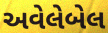
અવેલેબેલ